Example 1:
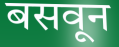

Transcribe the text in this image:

बसवून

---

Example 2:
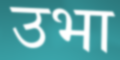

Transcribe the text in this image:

उभा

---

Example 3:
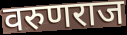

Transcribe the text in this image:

वरुणराज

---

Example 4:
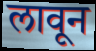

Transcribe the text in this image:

लावून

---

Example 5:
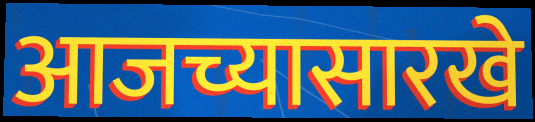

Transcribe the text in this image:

आजच्यासारखे